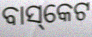
ବାସ୍‌କେଟ